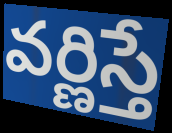
వర్ణిస్తే